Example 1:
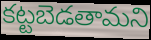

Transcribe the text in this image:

కట్టబెడతామని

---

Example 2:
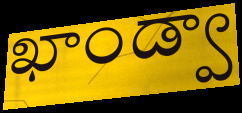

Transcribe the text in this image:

ఖాండ్వా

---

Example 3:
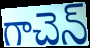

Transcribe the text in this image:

గాచెన్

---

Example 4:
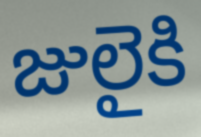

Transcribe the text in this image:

జులైకి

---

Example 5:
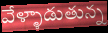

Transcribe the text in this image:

వేళ్ళాడుతున్న